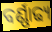
ବର୍ଣ୍ଣାଢ୍ୟ